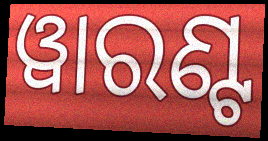
ୱାରଣ୍ଟ